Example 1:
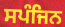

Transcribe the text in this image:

ਸਪੰਜਿਨ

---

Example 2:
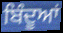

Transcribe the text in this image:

ਬਿੰਦੂਆਂ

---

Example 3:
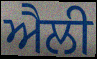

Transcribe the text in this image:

ਐਲੀ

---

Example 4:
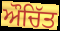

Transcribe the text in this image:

ਔਚਿੱਤ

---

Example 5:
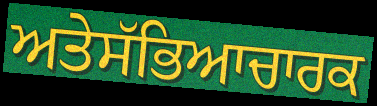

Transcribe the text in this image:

ਅਤੇਸੱਭਿਆਚਾਰਕ